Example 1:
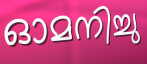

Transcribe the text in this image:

ഓമനിച്ചു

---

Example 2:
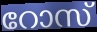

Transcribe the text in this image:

റോസ്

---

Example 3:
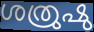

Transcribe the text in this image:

ശത്രുഷു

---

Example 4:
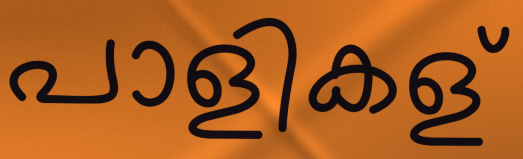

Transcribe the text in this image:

പാളികള്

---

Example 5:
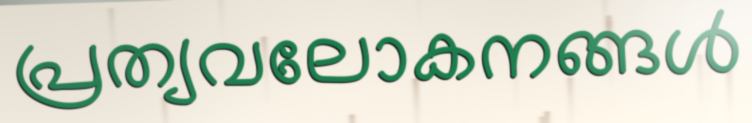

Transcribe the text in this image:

പ്രത്യവലോകനങ്ങൾ